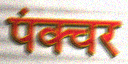
पंक्‍चर